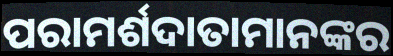
ପରାମର୍ଶଦାତାମାନଙ୍କର